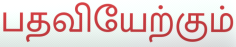
பதவியேற்கும்